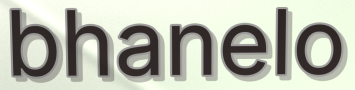
bhanelo